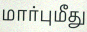
மார்புமீது